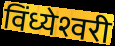
विंध्येश्वरी